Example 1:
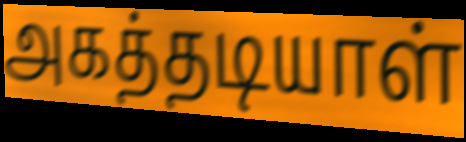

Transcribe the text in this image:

அகத்தடியாள்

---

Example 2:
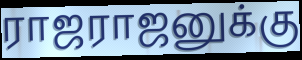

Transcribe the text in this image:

ராஜராஜனுக்கு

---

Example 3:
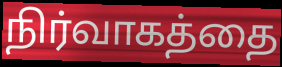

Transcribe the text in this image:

நிர்வாகத்தை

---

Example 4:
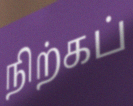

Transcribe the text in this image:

நிற்கப்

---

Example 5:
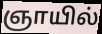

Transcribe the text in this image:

ஞாயில்